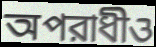
অপরাধীও